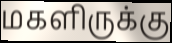
மகளிருக்கு